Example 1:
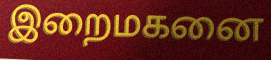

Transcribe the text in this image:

இறைமகனை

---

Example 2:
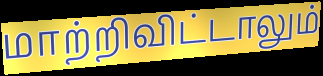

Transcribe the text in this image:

மாற்றிவிட்டாலும்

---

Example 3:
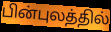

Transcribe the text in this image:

பின்புலத்தில்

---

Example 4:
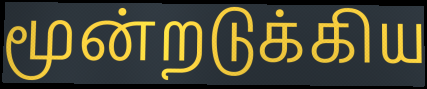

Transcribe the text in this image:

மூன்றடுக்கிய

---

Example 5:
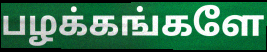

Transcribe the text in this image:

பழக்கங்களே